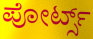
ಪೋರ್ಟ್ಸ್